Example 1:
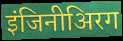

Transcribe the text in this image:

इंजिनीअिरग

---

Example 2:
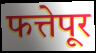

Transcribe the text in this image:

फत्तेपूर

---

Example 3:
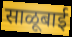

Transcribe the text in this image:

साळूबाई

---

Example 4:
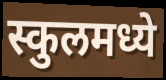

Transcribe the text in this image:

स्कुलमध्ये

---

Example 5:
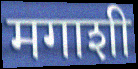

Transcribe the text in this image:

मगाशी